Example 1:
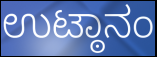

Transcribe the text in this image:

ಉಟ್ಠಾನಂ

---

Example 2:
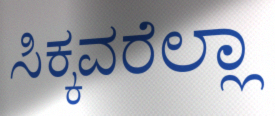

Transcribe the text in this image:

ಸಿಕ್ಕವರೆಲ್ಲಾ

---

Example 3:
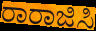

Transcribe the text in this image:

ರಾರಾಜಿಸಿ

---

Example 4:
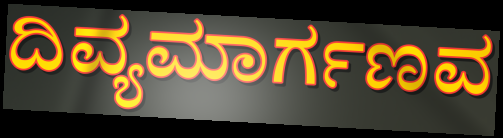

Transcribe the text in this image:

ದಿವ್ಯಮಾರ್ಗಣವ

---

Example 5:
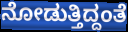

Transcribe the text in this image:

ನೋಡುತ್ತಿದ್ದಂತೆ